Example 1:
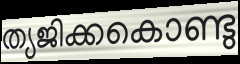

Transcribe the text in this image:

ത്യജിക്കകൊണ്ടു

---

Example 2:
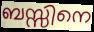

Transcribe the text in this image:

ബസ്സിനെ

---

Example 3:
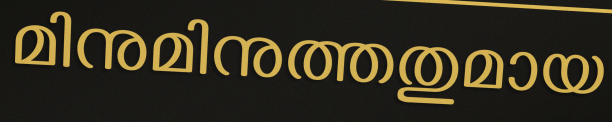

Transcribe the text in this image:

മിനുമിനുത്തതുമായ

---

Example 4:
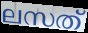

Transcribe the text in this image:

ലസത്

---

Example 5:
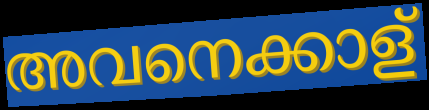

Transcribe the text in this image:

അവനെക്കാള്